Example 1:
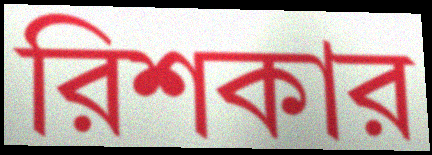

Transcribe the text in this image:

রিশকার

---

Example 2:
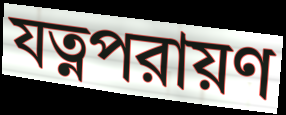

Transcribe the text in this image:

যত্নপরায়ণ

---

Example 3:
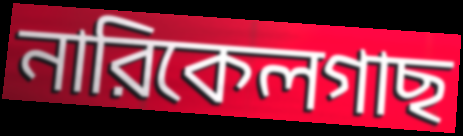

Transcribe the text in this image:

নারিকেলগাছ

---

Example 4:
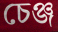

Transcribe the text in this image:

চেঞ্জ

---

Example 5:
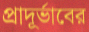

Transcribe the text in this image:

প্রাদূর্ভাবের